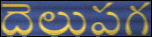
దెలుపగ